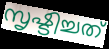
സൃഷ്ടിച്ചത്